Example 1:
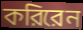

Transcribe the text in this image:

করিরেন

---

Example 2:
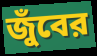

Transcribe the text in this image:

জুঁবের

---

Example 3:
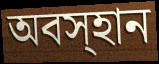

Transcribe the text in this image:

অবস্হান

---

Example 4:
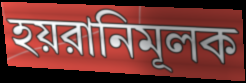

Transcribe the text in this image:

হয়রানিমূলক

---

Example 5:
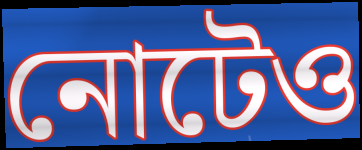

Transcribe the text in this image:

নোটেও